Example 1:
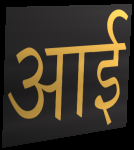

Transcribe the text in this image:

आई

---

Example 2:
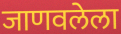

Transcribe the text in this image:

जाणवलेला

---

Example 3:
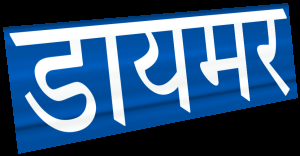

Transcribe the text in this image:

डायमर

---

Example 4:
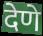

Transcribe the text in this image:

देणे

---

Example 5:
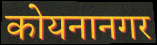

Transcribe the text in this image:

कोयनानगर